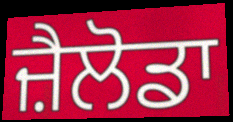
ਜ਼ੈਲੋਡਾ